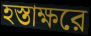
হস্তাক্ষরে